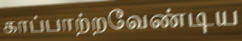
காப்பாற்றவேண்டிய